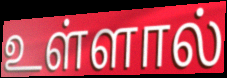
உள்ளால்